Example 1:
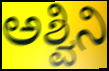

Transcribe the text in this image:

ಅಶ್ವಿನಿ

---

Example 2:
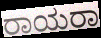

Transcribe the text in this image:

ರಾಯರಾ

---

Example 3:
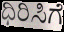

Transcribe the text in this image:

ಧಿರಿಸಿಗೆ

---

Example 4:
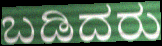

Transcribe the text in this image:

ಬಡಿದರು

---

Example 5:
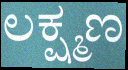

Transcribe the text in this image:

ಲಕ್ಷ್ಮಣ